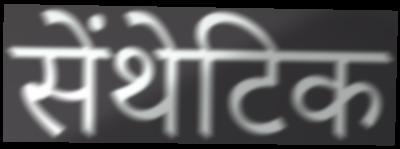
सेंथेटिक